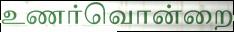
உணர்வொன்றை